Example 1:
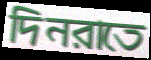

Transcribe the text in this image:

দিনরাতে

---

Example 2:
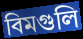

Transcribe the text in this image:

বিমগুলি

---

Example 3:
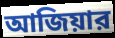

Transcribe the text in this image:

আজিয়ার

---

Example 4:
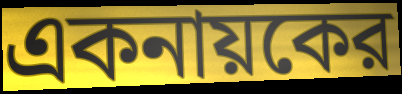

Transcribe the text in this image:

একনায়কের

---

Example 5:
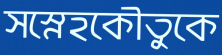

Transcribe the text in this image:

সস্নেহকৌতুকে